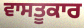
ਵਾਸਤੂਕਾਰ